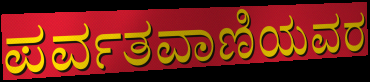
ಪರ್ವತವಾಣಿಯವರ